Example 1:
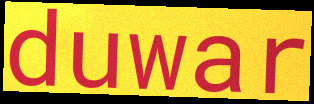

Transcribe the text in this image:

duwar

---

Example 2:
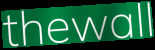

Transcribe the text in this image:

thewall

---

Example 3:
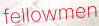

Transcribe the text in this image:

fellowmen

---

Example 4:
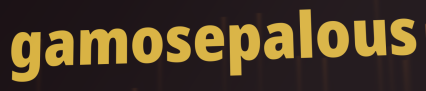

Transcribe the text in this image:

gamosepalous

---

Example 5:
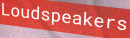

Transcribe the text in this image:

Loudspeakers